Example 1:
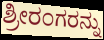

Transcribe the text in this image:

ಶ್ರೀರಂಗರನ್ನು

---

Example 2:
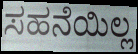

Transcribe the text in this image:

ಸಹನೆಯಿಲ್ಲ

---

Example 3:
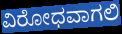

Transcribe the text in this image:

ವಿರೋಧವಾಗಲಿ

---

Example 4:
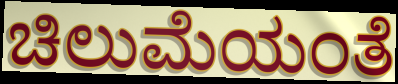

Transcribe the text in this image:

ಚಿಲುಮೆಯಂತೆ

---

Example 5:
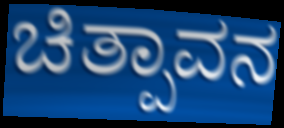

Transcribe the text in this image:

ಚಿತ್ಪಾವನ